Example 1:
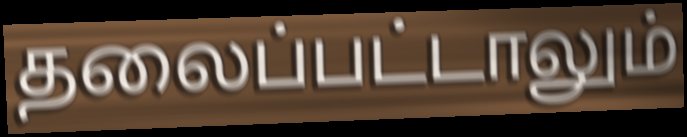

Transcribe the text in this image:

தலைப்பட்டாலும்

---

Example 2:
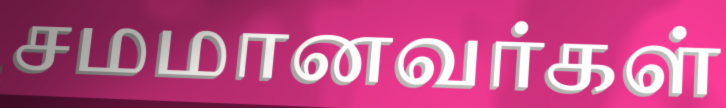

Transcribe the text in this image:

சமமானவர்கள்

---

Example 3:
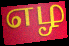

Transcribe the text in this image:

எழ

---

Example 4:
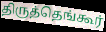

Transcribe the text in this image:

திருத்தெங்கூர்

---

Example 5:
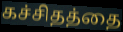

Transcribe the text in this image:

கச்சிதத்தை